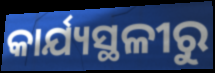
କାର୍ଯ୍ୟସ୍ଥଳୀରୁ